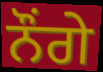
ਨੌਂਗੇ